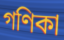
গণিকা